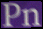
Pn